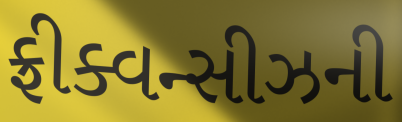
ફ્રીક્વન્સીઝની